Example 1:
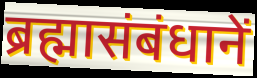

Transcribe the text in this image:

ब्रह्मासंबंधानें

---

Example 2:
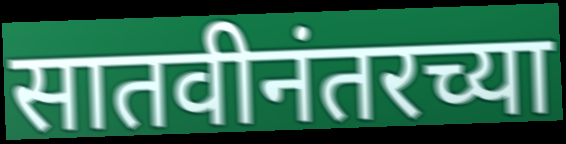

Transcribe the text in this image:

सातवीनंतरच्या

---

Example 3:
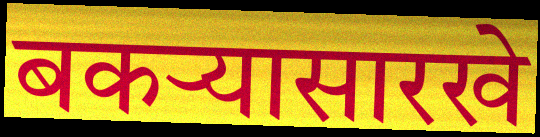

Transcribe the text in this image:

बकऱ्यासारखे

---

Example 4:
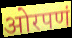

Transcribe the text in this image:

ओरपणं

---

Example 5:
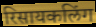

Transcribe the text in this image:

रिसायकलिंग